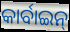
କାର୍ବାଇନ୍